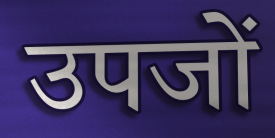
उपजों